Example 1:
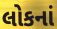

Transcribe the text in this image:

લોકનાં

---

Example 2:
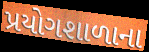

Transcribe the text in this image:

પ્રયોગશાળાના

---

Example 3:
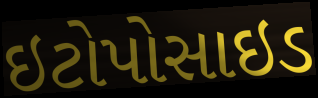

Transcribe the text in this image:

ઇટોપોસાઇડ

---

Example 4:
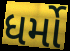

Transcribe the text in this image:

ધર્મો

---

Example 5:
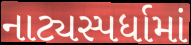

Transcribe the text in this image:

નાટ્યસ્પર્ધામાં